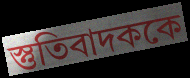
স্তুতিবাদককে